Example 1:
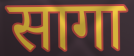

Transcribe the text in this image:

सागा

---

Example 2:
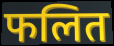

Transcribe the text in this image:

फलित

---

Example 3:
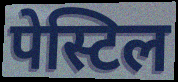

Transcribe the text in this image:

पेस्टिल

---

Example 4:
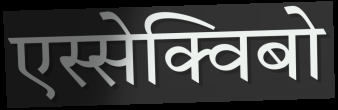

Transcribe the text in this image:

एस्सेक्विबो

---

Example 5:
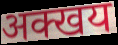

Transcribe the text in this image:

अक्खय